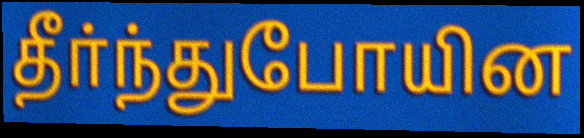
தீர்ந்துபோயின